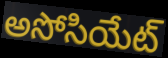
అసోసియేట్